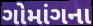
ગોમાંગના